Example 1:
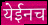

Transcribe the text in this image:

येईनच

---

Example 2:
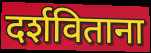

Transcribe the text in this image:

दर्शविताना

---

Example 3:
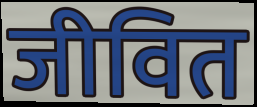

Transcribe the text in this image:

जीवित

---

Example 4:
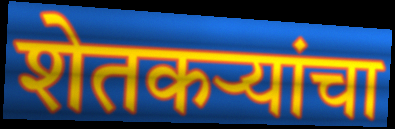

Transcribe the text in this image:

शेतकर्‍यांचा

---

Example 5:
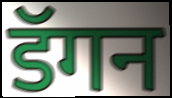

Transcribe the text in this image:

डॅगन